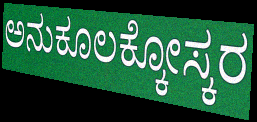
ಅನುಕೂಲಕ್ಕೋಸ್ಕರ